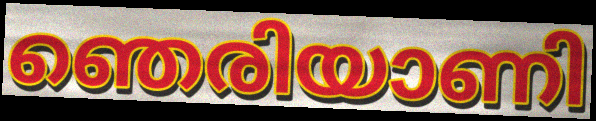
ഞെരിയാണി